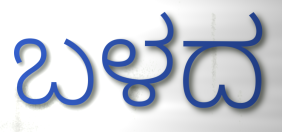
ಬಳದ